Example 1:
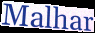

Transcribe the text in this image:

Malhar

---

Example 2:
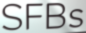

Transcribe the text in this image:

SFBs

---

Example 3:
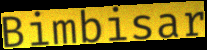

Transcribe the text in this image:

Bimbisar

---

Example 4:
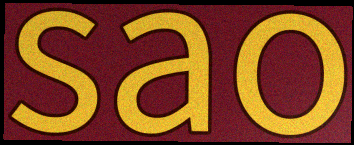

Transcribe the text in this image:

sao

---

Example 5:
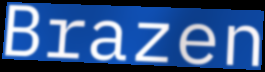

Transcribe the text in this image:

Brazen